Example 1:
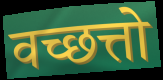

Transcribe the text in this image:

वच्छत्तो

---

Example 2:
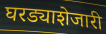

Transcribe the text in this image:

घरड्याशेजारी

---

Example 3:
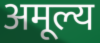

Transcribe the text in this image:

अमूल्य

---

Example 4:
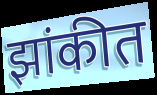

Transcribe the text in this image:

झांकीत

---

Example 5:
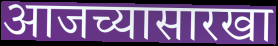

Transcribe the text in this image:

आजच्यासारखा